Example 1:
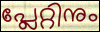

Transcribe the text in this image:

പ്ലേറ്റിനും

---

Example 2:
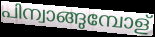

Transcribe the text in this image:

പിന്വാങ്ങുമ്പോള്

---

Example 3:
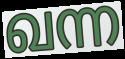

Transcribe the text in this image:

ഖന്ന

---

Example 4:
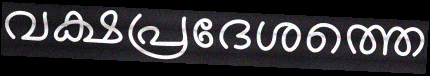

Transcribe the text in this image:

വക്ഷപ്രദേശത്തെ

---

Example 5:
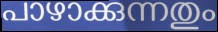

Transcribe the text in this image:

പാഴാക്കുന്നതും